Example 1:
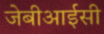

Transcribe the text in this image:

जेबीआईसी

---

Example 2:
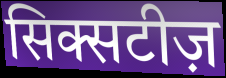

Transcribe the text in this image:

सिक्सटीज़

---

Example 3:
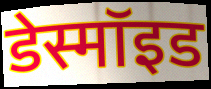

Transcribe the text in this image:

डेस्मॉइड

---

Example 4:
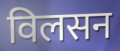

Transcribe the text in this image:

विलसन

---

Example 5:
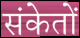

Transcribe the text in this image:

संकेतों